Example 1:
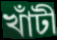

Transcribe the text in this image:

খাঁটী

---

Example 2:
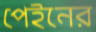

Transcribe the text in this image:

পেইনের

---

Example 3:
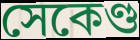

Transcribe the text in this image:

সেকেণ্ড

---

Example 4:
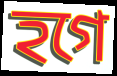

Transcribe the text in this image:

হগে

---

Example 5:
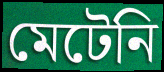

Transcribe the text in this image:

মেটেনি